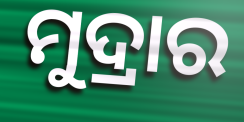
ମୁଦ୍ରାର